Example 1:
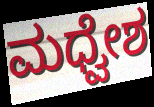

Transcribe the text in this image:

ಮಧ್ವೇಶ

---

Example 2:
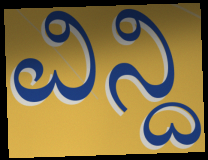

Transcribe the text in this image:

ವಿನ್ದಿ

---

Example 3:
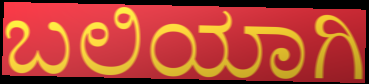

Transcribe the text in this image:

ಬಲಿಯಾಗಿ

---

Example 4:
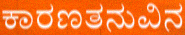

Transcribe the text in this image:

ಕಾರಣತನುವಿನ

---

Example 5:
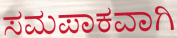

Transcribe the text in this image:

ಸಮಪಾಕವಾಗಿ